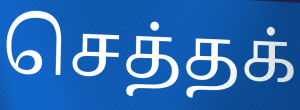
செத்தக்